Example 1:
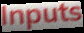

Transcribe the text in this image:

Inputs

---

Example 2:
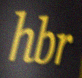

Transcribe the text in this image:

hbr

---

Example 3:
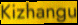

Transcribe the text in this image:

Kizhangu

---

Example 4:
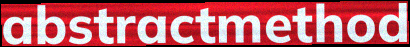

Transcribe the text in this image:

abstractmethod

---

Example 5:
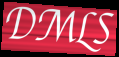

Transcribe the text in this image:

DMLS